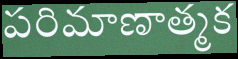
పరిమాణాత్మక